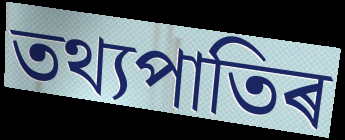
তথ্যপাতিৰ